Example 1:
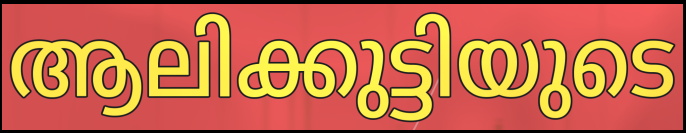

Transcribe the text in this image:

ആലിക്കുട്ടിയുടെ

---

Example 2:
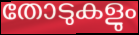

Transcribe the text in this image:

തോടുകളും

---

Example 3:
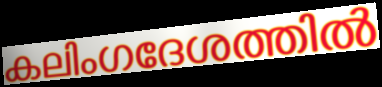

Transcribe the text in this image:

കലിംഗദേശത്തിൽ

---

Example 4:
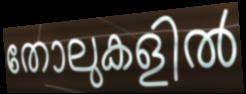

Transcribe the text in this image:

തോലുകളിൽ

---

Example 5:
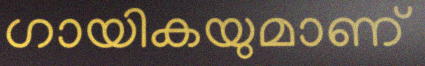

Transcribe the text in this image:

ഗായികയുമാണ്